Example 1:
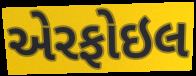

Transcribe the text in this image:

એરફોઇલ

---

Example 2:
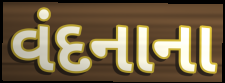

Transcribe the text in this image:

વંદનાના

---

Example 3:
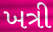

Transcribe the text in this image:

ખત્રી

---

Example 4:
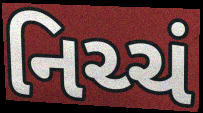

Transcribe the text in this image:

નિચ્ચં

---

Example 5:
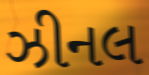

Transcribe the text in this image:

ઝીનલ